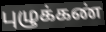
புழுக்கண்